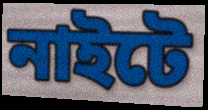
নাইটে